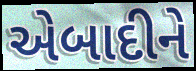
એબાદીને